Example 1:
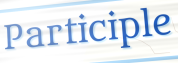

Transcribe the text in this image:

Participle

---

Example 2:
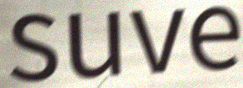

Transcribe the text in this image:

suve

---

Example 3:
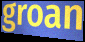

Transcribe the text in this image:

groan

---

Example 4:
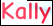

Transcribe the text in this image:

Kally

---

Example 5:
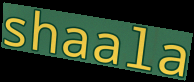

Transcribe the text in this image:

shaala